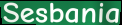
Sesbania